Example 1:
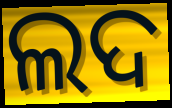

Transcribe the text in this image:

ଲଦ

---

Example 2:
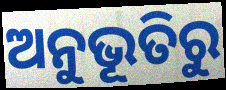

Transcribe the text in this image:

ଅନୁଭୂତିରୁ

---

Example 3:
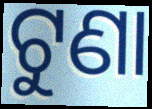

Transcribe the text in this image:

ଟୁଣା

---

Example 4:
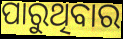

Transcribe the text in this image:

ପାରୁଥିବାର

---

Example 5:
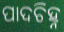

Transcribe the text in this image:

ପାଦଚିହ୍ନ